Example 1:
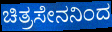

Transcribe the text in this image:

ಚಿತ್ರಸೇನನಿಂದ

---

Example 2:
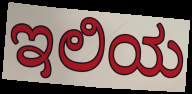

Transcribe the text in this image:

ಇಲಿಯ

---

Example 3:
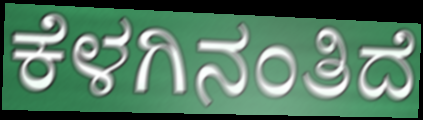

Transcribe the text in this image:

ಕೆಳಗಿನಂತಿದೆ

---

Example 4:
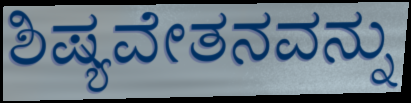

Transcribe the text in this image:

ಶಿಷ್ಯವೇತನವನ್ನು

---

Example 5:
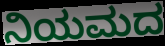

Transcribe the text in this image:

ನಿಯಮದ